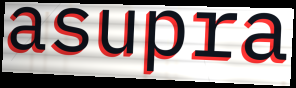
asupra